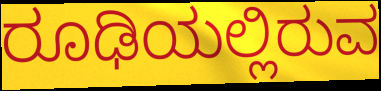
ರೂಢಿಯಲ್ಲಿರುವ